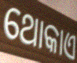
ଥୋକାଏ